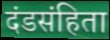
दंडसंहिता